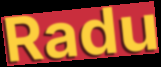
Radu